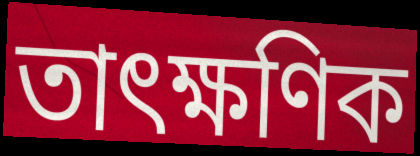
তাৎক্ষণিক